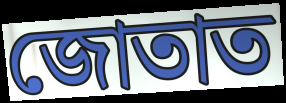
জোতাত